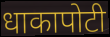
धाकापोटी